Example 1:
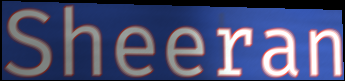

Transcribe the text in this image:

Sheeran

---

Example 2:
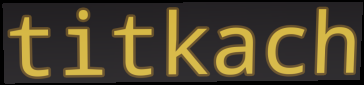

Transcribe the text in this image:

titkach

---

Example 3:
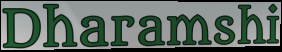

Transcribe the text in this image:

Dharamshi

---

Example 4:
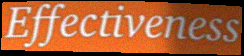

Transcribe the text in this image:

Effectiveness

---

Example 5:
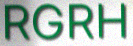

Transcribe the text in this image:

RGRH